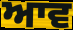
ਆਵ